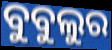
ବୁବୁଲୁର